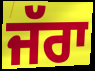
ਜੱਰਾ